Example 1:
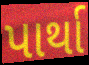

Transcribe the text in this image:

પાર્થા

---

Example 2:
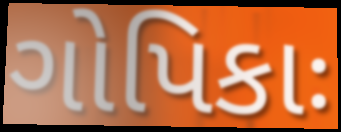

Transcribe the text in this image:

ગોપિકાઃ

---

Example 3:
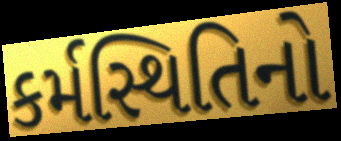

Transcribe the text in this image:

કર્મસ્થિતિનો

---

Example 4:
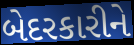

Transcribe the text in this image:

બેદરકારીને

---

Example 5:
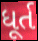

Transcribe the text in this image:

ધૂર્ત